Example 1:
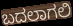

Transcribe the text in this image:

ಬದಲಾಗಲಿ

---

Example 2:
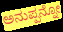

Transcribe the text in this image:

ಅನುಪ್ಪನ್ನೋ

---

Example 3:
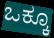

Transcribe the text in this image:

ಒಕ್ಕೂ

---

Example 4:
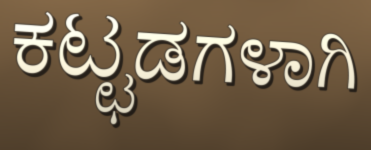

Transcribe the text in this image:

ಕಟ್ಟಡಗಳಾಗಿ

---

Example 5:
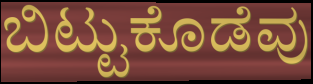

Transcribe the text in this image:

ಬಿಟ್ಟುಕೊಡೆವು